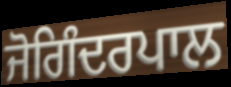
ਜੋਗਿੰਦਰਪਾਲ